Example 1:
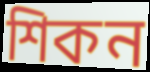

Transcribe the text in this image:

শিকন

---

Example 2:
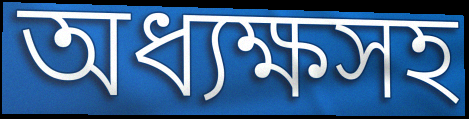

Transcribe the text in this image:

অধ্যক্ষসহ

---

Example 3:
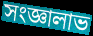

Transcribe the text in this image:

সংজ্ঞালাভ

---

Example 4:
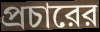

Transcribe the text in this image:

প্রচারের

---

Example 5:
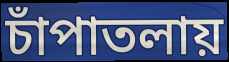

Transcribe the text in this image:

চাঁপাতলায়